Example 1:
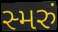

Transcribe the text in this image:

સ્મરું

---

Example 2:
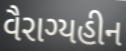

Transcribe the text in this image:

વૈરાગ્યહીન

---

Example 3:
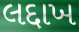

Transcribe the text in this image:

લદ્દાખ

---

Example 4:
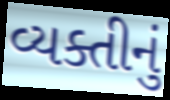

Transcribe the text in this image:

વ્યક્તીનું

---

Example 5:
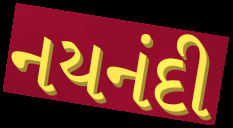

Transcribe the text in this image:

નયનંદી